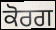
ਕੋਰਗ